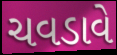
ચવડાવે